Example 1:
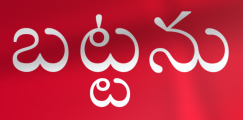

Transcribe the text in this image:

బట్టను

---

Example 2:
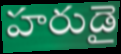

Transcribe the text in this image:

హరుడై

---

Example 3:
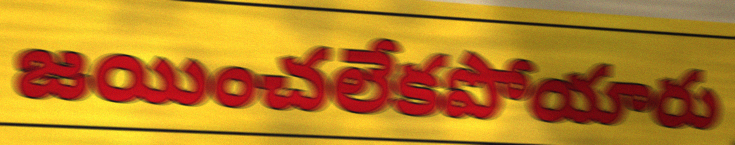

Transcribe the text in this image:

జయించలేకపోయారు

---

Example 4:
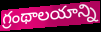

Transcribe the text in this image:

గ్రంథాలయాన్ని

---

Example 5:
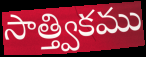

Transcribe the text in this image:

సాత్త్వికము